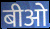
बीओ